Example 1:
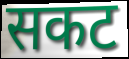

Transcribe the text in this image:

सकट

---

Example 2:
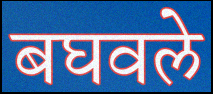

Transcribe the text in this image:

बघवले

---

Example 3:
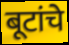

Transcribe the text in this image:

बूटांचे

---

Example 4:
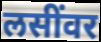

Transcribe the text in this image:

लसींवर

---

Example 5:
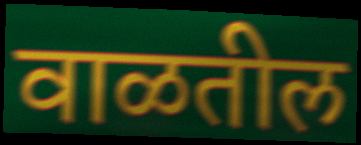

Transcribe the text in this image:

वाळतील